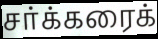
சர்க்கரைக்